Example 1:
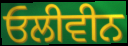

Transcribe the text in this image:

ਓਲੀਵੀਨ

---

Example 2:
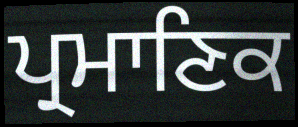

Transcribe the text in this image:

ਪ੍ਰਮਾਣਿਕ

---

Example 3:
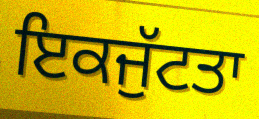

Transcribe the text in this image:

ਇਕਜੁੱਟਤਾ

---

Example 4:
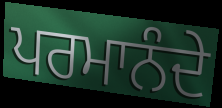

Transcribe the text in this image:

ਪਰਮਾਨੰਦੇ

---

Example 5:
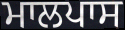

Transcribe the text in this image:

ਮਾਲਪਾਸ